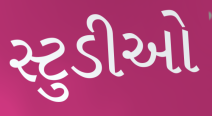
સ્ટુડીઓ